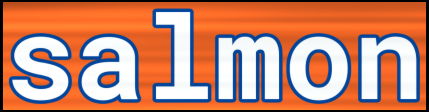
salmon